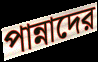
পান্নাদের